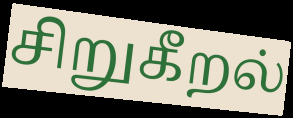
சிறுகீறல்